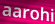
aarohi